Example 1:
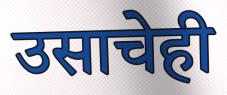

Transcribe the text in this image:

उसाचेही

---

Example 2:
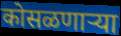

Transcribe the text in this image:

कोसळणाऱ्या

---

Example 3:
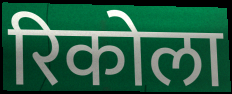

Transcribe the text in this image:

रिकोला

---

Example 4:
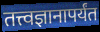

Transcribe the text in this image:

तत्त्वज्ञानापर्यंत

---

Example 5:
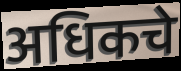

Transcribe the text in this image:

अधिकचे